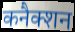
कनैक्शन